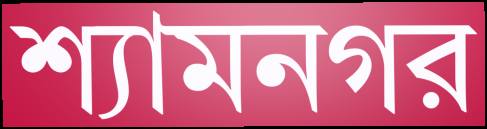
শ্যামনগর